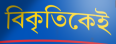
বিকৃতিকেই